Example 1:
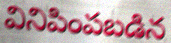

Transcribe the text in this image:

వినిపింపబడిన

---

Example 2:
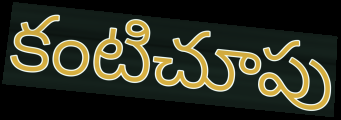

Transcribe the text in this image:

కంటిచూపు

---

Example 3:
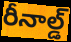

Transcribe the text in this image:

రీనాల్డ్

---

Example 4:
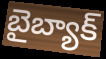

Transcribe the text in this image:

బైబ్యాక్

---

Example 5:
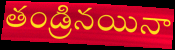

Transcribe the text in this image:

తండ్రినయినా